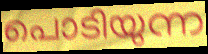
പൊടിയുന്ന